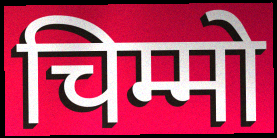
चिम्मो